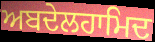
ਅਬਦੇਲਹਾਮਿਦ